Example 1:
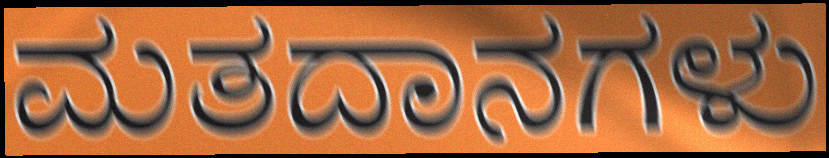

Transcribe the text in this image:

ಮತದಾನಗಳು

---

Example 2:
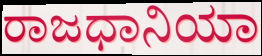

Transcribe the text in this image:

ರಾಜಧಾನಿಯಾ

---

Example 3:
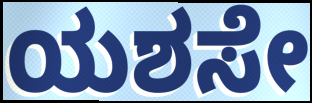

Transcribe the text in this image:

ಯಶಸೇ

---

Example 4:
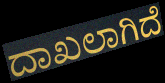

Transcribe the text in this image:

ದಾಖಲಾಗಿದೆ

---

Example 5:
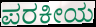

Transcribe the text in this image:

ಪರಕೀಯ